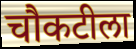
चौकटीला